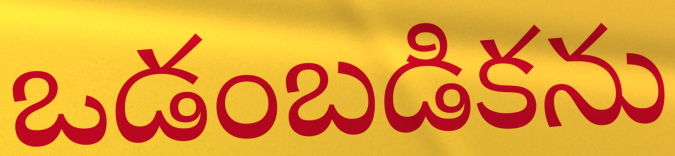
ఒడంబడికను